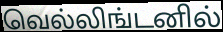
வெல்லிங்டனில்